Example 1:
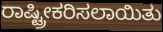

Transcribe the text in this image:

ರಾಷ್ಟ್ರೀಕರಿಸಲಾಯಿತು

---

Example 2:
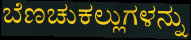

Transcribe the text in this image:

ಬೆಣಚುಕಲ್ಲುಗಳನ್ನು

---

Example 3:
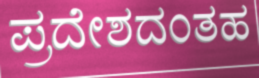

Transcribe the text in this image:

ಪ್ರದೇಶದಂತಹ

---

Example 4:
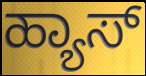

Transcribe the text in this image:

ಹ್ಯಾಸ್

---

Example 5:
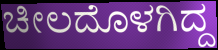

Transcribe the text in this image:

ಚೀಲದೊಳಗಿದ್ದ